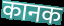
कानक